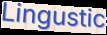
Lingustic